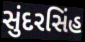
સુંદરસિંહ